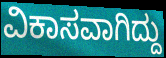
ವಿಕಾಸವಾಗಿದ್ದು